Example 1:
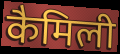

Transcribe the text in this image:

कैमिली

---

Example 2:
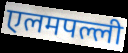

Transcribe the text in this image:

एलमपल्ली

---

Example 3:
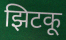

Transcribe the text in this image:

झिटकू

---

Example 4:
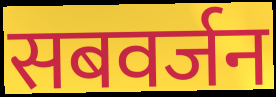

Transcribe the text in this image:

सबवर्जन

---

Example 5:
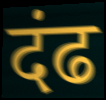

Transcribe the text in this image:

दंढ